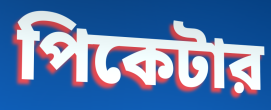
পিকেটার